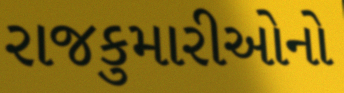
રાજકુમારીઓનો